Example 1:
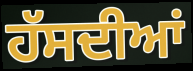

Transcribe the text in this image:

ਹੱਸਦੀਆਂ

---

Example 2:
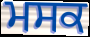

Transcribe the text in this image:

ਮਸਕ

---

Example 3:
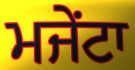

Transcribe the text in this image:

ਮਜੇਂਟਾ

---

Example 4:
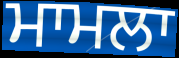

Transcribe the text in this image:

ਮਾਮਲਾ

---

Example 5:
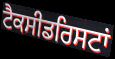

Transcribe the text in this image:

ਟੈਕਸੀਡਰਿਸਟਾਂ